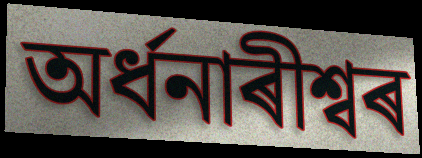
অৰ্ধনাৰীশ্বৰ